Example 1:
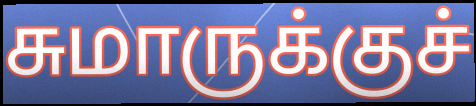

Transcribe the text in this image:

சுமாருக்குச்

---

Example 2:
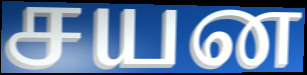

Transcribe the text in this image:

சயன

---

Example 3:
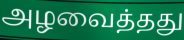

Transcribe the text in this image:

அழவைத்தது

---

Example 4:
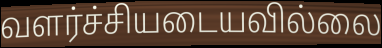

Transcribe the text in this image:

வளர்ச்சியடையவில்லை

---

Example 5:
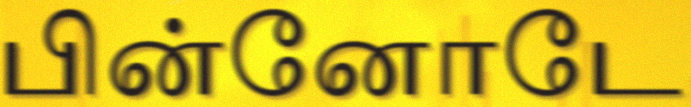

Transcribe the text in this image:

பின்னோடே